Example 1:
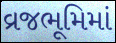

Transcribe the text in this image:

વ્રજભૂમિમાં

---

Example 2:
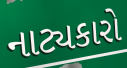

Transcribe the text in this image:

નાટ્યકારો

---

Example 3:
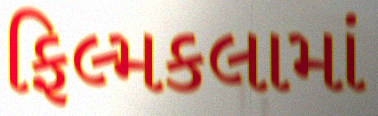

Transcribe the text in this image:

ફિલ્મકલામાં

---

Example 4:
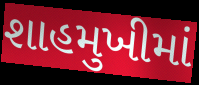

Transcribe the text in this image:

શાહમુખીમાં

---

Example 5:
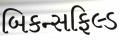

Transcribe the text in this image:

બિકન્સફિલ્ડ